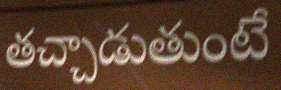
తచ్చాడుతుంటే